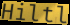
Hiltl